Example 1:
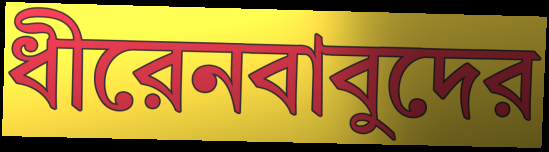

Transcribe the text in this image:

ধীরেনবাবুদের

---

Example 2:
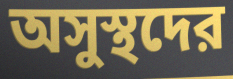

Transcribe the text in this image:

অসুস্থদের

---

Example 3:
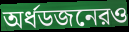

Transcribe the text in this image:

অর্ধডজনেরও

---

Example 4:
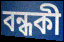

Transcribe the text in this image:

বন্ধকী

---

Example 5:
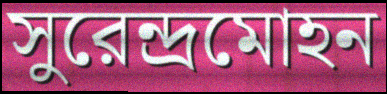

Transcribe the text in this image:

সুরেন্দ্রমোহন